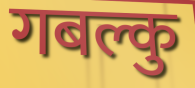
गबल्कु